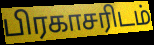
பிரகாசரிடம்